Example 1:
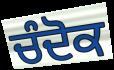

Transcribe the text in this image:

ਚੰਦੋਕ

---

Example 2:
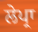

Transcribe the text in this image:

ਲੇਪ੍ਰਾ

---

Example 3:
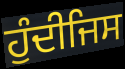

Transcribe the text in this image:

ਹੁੰਦੀਜਿਸ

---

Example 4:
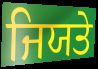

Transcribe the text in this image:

ਜਿਯਤੇ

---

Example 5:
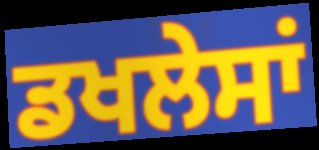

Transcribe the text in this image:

ਡਖਲੇਸਾਂ